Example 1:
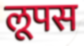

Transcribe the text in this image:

लूपस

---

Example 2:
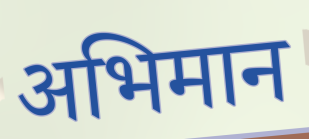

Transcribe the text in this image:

अभिमान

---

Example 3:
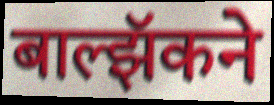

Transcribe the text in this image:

बाल्झॅकने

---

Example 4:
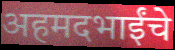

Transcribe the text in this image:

अहमदभाईंचे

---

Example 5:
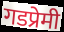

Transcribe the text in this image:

गडप्रेमी